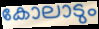
കോലാടും